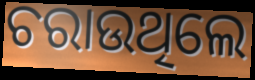
ଚରାଉଥିଲେ